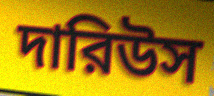
দারিউস